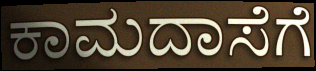
ಕಾಮದಾಸೆಗೆ